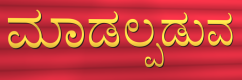
ಮಾಡಲ್ಪಡುವ